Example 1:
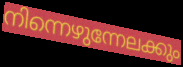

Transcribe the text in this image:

നിന്നെഴുന്നേലക്കും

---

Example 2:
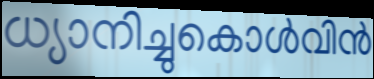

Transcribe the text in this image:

ധ്യാനിച്ചുകൊൾവിൻ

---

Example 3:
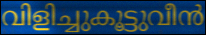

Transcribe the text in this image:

വിളിച്ചുകൂട്ടുവീൻ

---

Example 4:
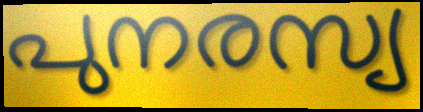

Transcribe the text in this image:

പുനരസ്യ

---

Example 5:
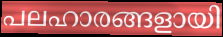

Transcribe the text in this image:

പലഹാരങ്ങളായി